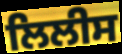
ਲਿਲੀਸ